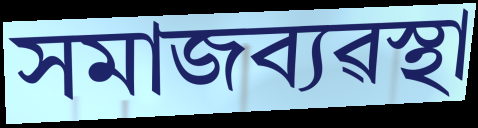
সমাজব্যৱস্থা